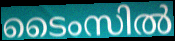
ടൈംസിൽ